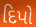
દિપો